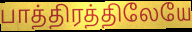
பாத்திரத்திலேயே